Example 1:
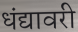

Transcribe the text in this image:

धंद्यावरी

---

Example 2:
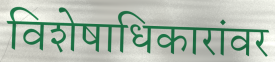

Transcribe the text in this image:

विशेषाधिकारांवर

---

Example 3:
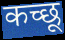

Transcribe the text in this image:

कच्छू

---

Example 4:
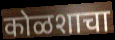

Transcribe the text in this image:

कोळशाचा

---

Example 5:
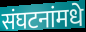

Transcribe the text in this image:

संघटनांमधे